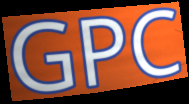
GPC